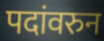
पदांवरुन